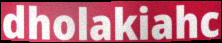
dholakiahc